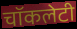
चॉकलेटी